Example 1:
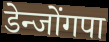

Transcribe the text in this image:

डेन्जोंगपा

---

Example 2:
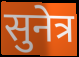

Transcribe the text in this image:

सुनेत्र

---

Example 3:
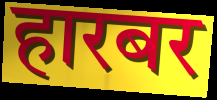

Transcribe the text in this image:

हारबर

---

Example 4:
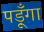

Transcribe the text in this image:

पड़ूँगा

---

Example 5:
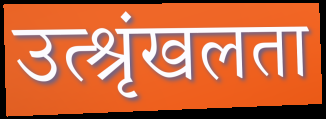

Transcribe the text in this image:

उत्श्रृंखलता